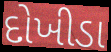
દોખીડા